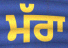
ਮੱਰਾ